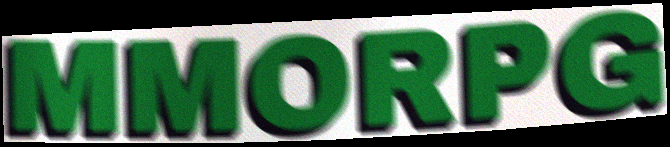
MMORPG